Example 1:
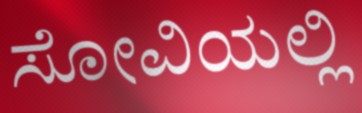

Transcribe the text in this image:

ಸೋವಿಯಲ್ಲಿ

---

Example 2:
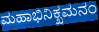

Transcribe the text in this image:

ಮಹಾಭಿನಿಕ್ಖಮನಂ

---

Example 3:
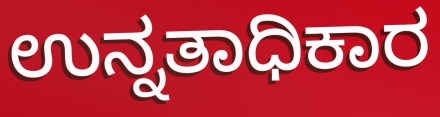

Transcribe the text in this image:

ಉನ್ನತಾಧಿಕಾರ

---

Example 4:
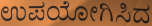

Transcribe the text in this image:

ಉಪಯೋಗಿಸಿದ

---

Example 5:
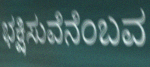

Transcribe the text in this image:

ಭಕ್ಷಿಸುವೆನೆಂಬವ